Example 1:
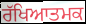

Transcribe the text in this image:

ਰੱਖਿਆਤਮਕ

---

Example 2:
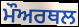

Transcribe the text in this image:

ਮੌਅਰਥਲ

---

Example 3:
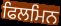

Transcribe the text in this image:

ਫਿਲਮਿਨ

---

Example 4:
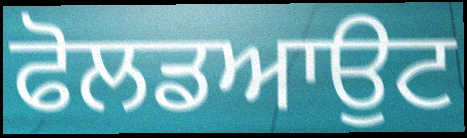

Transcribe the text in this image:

ਫੋਲਡਆਉਟ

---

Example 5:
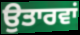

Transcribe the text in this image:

ਉਤਾਰਵਾਂ